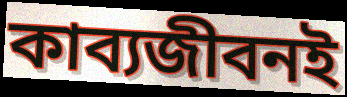
কাব্যজীবনই